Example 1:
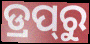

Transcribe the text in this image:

ଡ୍ରପ୍‍ରୁ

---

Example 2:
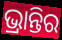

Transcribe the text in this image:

ଭ୍ରାନ୍ତିର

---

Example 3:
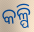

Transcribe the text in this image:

କଳ୍ପି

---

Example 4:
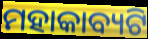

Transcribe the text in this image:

ମହାକାବ୍ୟଟି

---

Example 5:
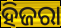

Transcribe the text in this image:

ହିଜରା